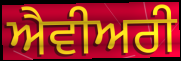
ਐਵੀਅਰੀ